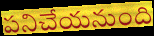
పనిచేయనుంది